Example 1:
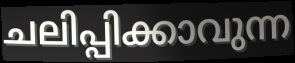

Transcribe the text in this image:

ചലിപ്പിക്കാവുന്ന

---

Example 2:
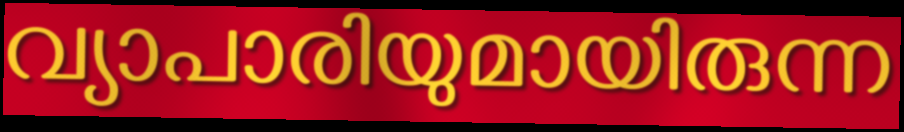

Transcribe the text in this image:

വ്യാപാരിയുമായിരുന്ന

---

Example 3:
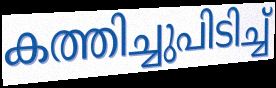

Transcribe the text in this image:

കത്തിച്ചുപിടിച്ച്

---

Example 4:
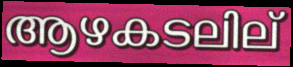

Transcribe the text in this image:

ആഴകടലില്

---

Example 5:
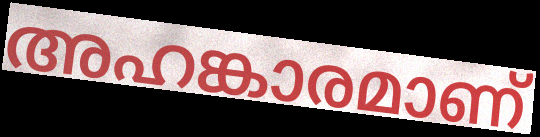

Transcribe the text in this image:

അഹങ്കാരമാണ്